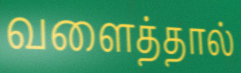
வளைத்தால்